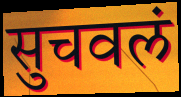
सुचवलं